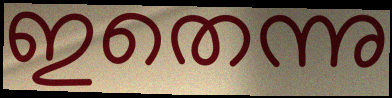
ഇതെന്നു